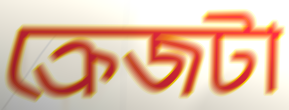
ক্রেজটা